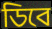
ডিবে